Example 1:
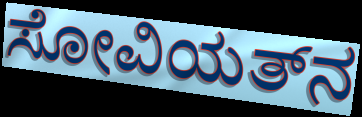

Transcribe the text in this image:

ಸೋವಿಯತ್‌ನ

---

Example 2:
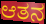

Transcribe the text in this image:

ಆತನ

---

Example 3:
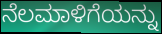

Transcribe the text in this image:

ನೆಲಮಾಳಿಗೆಯನ್ನು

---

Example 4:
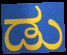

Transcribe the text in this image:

ಡು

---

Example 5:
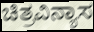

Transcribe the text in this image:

ಚಿತ್ರವಿನ್ಯಾಸ